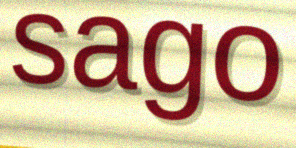
sago